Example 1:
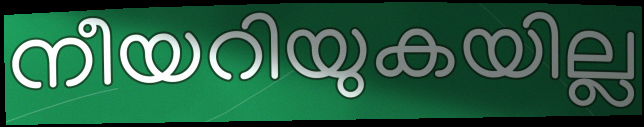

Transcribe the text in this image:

നീയറിയുകയില്ല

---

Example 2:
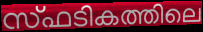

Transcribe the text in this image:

സ്ഫടികത്തിലെ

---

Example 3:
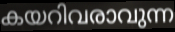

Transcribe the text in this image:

കയറിവരാവുന്ന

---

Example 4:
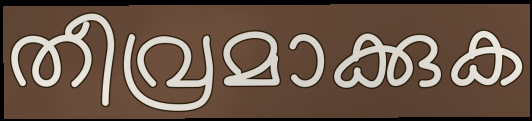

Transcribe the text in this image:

തീവ്രമാക്കുക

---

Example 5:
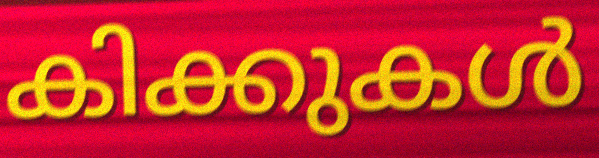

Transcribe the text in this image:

കിക്കുകൾ